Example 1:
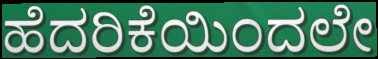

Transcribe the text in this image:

ಹೆದರಿಕೆಯಿಂದಲೇ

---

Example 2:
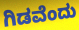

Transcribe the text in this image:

ಗಿಡವೆಂದು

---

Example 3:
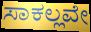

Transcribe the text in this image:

ಸಾಕಲ್ಲವೇ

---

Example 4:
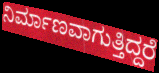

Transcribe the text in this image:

ನಿರ್ಮಾಣವಾಗುತ್ತಿದ್ದರೆ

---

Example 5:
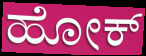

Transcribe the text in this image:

ಹೋಕ್